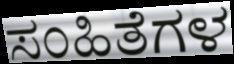
ಸಂಹಿತೆಗಳ